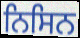
ਨਿਸਿਨ